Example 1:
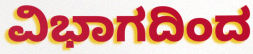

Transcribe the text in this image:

ವಿಭಾಗದಿಂದ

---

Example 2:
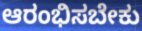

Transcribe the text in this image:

ಆರಂಭಿಸಬೇಕು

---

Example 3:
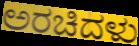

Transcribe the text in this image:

ಅರಚಿದಳು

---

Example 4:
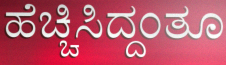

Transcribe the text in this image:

ಹೆಚ್ಚಿಸಿದ್ದಂತೂ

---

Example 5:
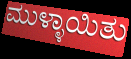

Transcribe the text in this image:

ಮುಳ್ಳಾಯಿತು